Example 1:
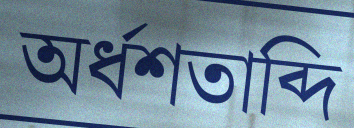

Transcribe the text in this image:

অর্ধশতাব্দি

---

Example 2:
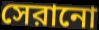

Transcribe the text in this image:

সেরানো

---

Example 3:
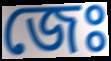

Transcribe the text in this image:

জেঃ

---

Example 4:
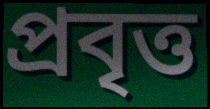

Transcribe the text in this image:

প্রবৃত্ত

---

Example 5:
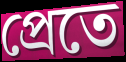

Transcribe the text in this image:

প্রেতে